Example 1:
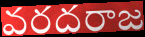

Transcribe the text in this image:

వరదరాజ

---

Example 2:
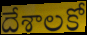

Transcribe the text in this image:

దేశాలకో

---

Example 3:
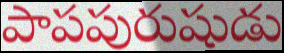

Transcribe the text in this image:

పాపపురుషుడు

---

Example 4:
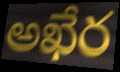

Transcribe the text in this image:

అఖేర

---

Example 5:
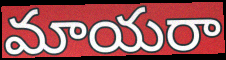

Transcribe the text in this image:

మాయరా